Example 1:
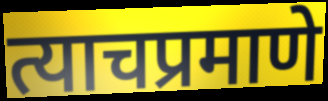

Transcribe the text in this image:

त्याचप्रमाणे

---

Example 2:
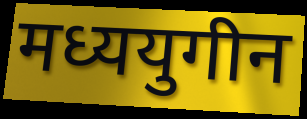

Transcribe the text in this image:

मध्ययुगीन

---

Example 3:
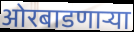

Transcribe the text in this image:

ओरबाडणाऱ्या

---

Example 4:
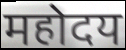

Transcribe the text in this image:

महोदय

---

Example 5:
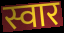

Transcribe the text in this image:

स्वार